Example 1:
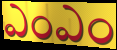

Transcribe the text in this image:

ఎంఎం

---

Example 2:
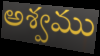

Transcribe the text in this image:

అశ్వము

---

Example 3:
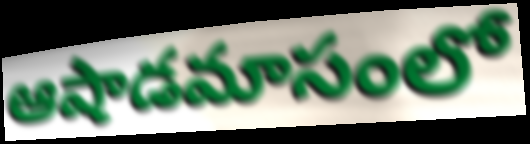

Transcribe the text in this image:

ఆషాడమాసంలో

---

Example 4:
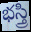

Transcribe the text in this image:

భస్త్రి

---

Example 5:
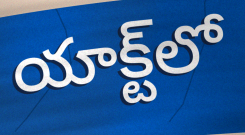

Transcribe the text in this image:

యాక్ట్‌లో